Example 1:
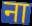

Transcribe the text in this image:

ना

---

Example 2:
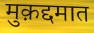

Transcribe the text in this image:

मुक़द्दमात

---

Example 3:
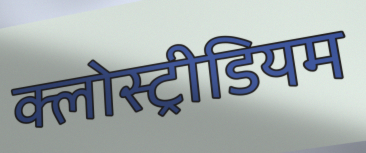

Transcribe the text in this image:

क्लोस्ट्रीडियम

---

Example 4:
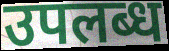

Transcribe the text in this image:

उपलब्ध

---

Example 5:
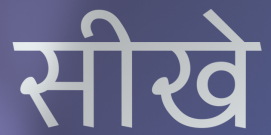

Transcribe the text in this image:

सीखे